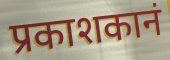
प्रकाशकानं